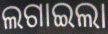
ଲଗାଇଲା